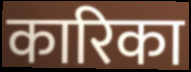
कारिका